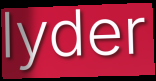
lyder